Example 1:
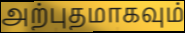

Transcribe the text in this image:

அற்புதமாகவும்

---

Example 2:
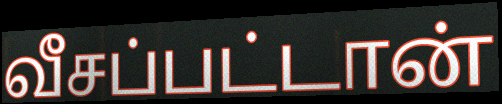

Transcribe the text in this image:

வீசப்பட்டான்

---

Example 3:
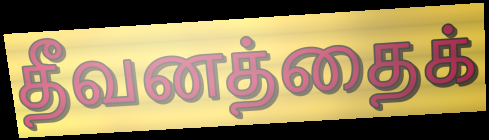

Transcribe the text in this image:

தீவனத்தைக்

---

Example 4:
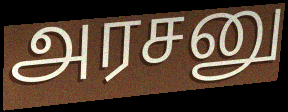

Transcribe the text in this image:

அரசனு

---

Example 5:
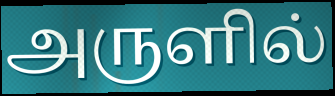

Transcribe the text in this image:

அருளில்